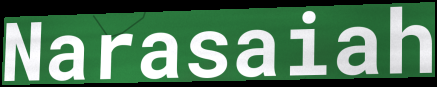
Narasaiah